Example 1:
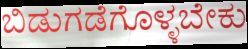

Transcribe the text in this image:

ಬಿಡುಗಡೆಗೊಳ್ಳಬೇಕು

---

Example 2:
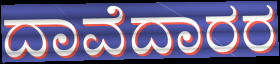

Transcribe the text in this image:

ದಾವೆದಾರರ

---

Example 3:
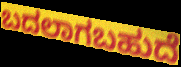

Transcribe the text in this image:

ಬದಲಾಗಬಹುದೆ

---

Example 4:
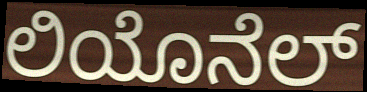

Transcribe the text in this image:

ಲಿಯೊನೆಲ್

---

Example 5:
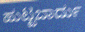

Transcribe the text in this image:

ಹುಟ್ಟಬಾರ್ದು